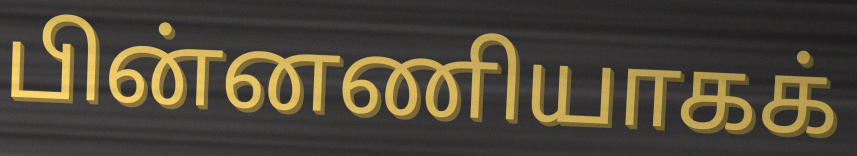
பின்னணியாகக்